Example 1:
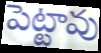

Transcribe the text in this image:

పెట్టావు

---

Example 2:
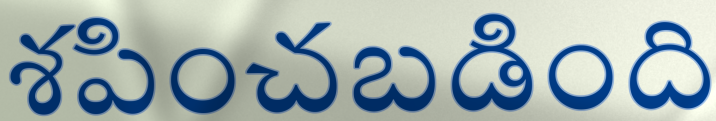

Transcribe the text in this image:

శపించబడింది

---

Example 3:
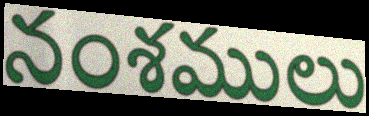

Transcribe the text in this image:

నంశములు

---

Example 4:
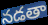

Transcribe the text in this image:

నడతా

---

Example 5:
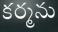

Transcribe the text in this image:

కర్మను